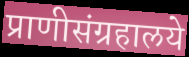
प्राणीसंग्रहालये